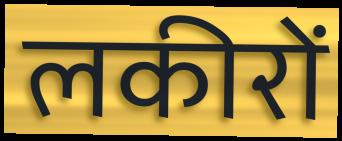
लकीरों